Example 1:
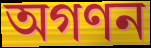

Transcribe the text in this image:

অগণন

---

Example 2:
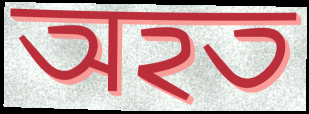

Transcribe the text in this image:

অহত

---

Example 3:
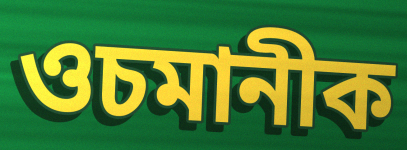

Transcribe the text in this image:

ওচমানীক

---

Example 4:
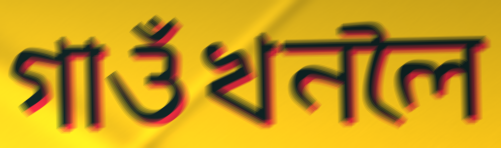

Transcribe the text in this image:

গাওঁখনলৈ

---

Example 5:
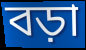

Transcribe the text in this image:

বড়া